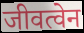
जीवत्वेन